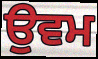
ਉਵਮ